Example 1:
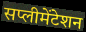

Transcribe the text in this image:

सप्लीमेंटेशन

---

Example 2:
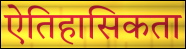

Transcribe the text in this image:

ऐतिहासिकता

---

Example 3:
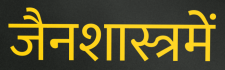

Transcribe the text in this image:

जैनशास्त्रमें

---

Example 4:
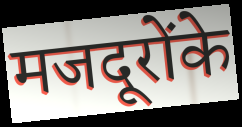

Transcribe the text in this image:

मजदूरोंके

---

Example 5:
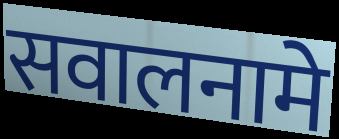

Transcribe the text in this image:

सवालनामे